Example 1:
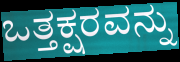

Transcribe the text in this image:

ಒತ್ತಕ್ಷರವನ್ನು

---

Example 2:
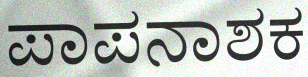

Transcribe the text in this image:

ಪಾಪನಾಶಕ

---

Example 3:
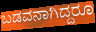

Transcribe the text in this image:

ಬಡವನಾಗಿದ್ದರೂ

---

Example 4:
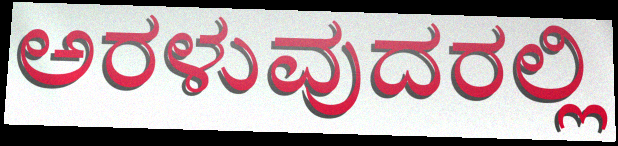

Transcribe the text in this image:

ಅರಳುವುದರಲ್ಲಿ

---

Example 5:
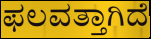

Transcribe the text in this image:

ಫಲವತ್ತಾಗಿದೆ